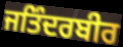
ਜਤਿੰਦਰਬੀਰ